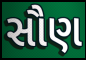
સૌણ